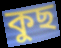
কুছ